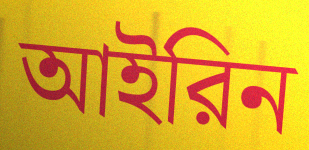
আইরিন